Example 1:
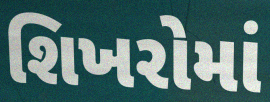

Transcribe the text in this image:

શિખરોમાં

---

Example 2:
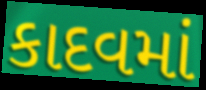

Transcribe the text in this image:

કાદવમાં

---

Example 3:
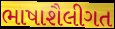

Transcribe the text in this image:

ભાષાશૈલીગત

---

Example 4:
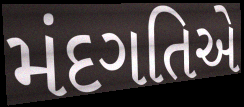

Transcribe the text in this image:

મંદગતિએ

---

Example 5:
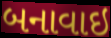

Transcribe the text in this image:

બનાવાઇ